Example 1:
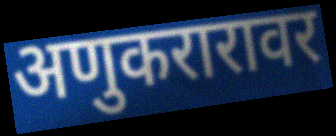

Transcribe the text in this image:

अणुकरारावर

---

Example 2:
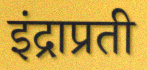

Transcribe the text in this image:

इंद्राप्रती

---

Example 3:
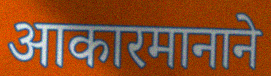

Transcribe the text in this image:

आकारमानाने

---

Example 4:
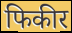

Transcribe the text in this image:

फिकीर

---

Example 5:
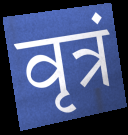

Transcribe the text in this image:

वृत्रं